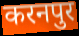
करनपुर